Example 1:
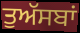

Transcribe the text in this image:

ਤੁਅੱਸਬਾਂ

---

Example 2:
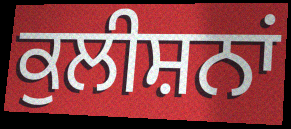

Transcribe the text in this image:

ਕੁਲੀਸ਼ਨਾਂ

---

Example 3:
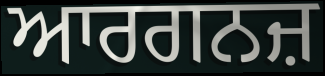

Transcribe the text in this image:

ਆਰਗਨਜ਼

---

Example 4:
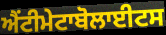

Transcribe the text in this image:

ਐਂਟੀਮੇਟਾਬੋਲਾਈਟਸ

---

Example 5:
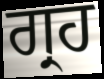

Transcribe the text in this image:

ਗ੍ਰਹ